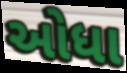
ઓધા